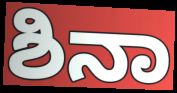
ಶಿನಾ